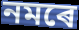
নমৰে